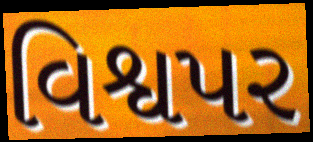
વિશ્વપર